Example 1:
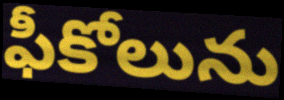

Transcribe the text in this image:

ఫీకోలును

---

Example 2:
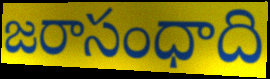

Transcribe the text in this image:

జరాసంధాది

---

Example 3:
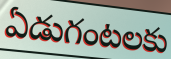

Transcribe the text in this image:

ఏడుగంటలకు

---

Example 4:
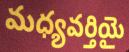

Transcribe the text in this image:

మధ్యవర్తియై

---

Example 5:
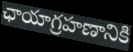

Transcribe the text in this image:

ఛాయాగ్రహణానికి